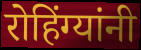
रोहिंग्यांनी